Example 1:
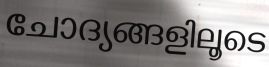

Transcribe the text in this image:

ചോദ്യങ്ങളിലൂടെ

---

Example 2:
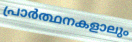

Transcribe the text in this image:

പ്രാർത്ഥനകളാലും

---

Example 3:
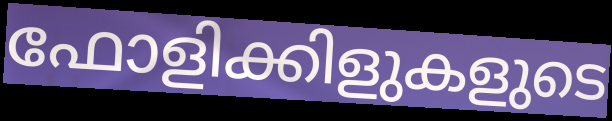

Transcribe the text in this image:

ഫോളിക്കിളുകളുടെ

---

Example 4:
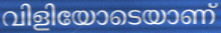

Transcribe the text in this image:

വിളിയോടെയാണ്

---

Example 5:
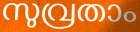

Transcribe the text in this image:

സുവ്രതാം